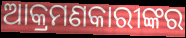
ଆକ୍ରମଣକାରୀଙ୍କର